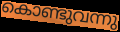
കൊണ്ടുവന്നു